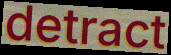
detract